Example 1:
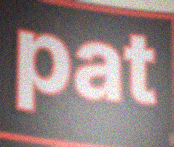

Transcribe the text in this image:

pat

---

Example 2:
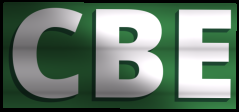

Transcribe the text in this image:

CBE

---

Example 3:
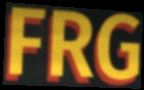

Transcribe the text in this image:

FRG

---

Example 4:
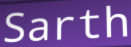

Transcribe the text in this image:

Sarth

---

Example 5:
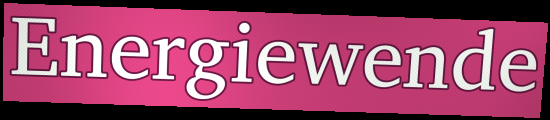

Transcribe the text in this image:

Energiewende